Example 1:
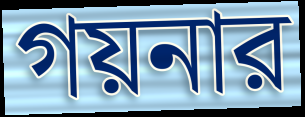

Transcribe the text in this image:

গয়নার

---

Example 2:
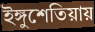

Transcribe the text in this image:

ইঙ্গুশেতিয়ায়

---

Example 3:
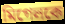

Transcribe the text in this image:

মিগেলকে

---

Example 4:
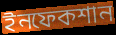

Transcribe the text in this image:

ইনফেকশান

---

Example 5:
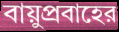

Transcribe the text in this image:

বায়ুপ্রবাহের